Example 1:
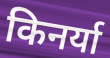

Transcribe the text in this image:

किनर्या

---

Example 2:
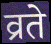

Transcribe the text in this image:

व्रते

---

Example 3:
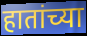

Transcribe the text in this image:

हातांच्या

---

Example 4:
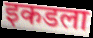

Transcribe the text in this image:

इकडला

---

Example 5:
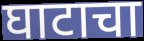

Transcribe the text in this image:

घाटाचा